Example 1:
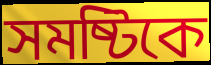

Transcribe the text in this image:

সমষ্টিকে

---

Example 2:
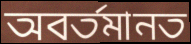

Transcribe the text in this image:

অবৰ্তমানত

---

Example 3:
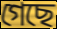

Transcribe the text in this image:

গেছে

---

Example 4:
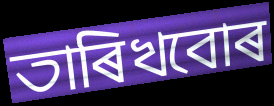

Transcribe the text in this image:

তাৰিখবোৰ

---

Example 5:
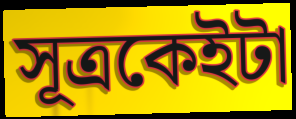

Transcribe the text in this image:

সূত্ৰকেইটা